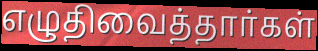
எழுதிவைத்தார்கள்